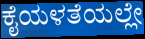
ಕೈಯಳತೆಯಲ್ಲೇ